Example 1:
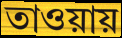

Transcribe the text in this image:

তাওয়ায়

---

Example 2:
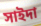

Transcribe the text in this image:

সাইদা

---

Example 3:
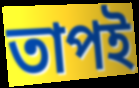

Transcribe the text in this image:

তাপই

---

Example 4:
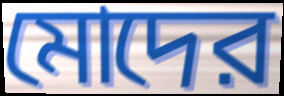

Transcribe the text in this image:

মোদের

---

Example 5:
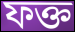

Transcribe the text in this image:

ফক্ত